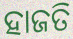
ହାଜତି